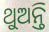
ଥୁଅନ୍ତି